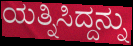
ಯತ್ನಿಸಿದ್ದನ್ನು